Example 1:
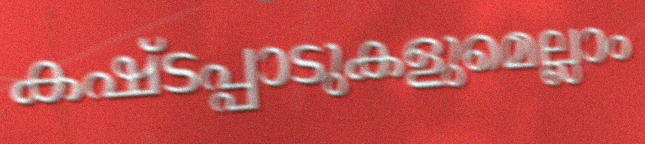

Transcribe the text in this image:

കഷ്ടപ്പാടുകളുമെല്ലാം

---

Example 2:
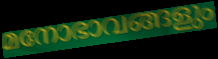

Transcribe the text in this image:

മനോഭാവങ്ങളും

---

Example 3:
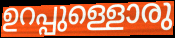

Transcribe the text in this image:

ഉറപ്പുള്ളൊരു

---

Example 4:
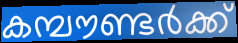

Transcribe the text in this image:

കമ്പൗണ്ടർക്ക്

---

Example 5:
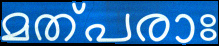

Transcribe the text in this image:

മത്പരാഃ